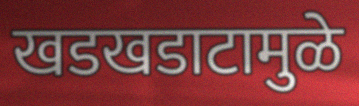
खडखडाटामुळे